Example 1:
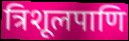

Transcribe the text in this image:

त्रिशूलपाणि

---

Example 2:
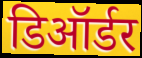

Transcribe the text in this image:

डिऑर्डर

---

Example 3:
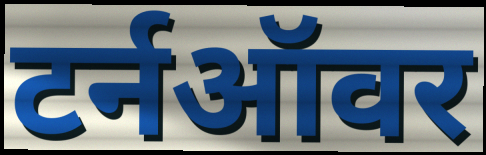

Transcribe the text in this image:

टर्नऑवर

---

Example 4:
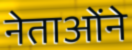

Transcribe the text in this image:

नेताओंने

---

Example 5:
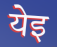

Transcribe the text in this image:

येइ